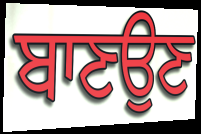
ਬਾਣਉਣ